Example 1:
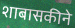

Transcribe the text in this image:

शाबासकीने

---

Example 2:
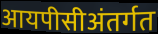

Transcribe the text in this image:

आयपीसीअंतर्गत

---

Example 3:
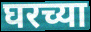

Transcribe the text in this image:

घरच्या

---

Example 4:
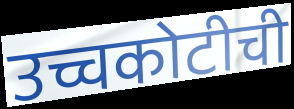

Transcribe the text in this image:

उच्चकोटीची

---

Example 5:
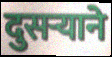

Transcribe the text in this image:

दुसर्‍याने